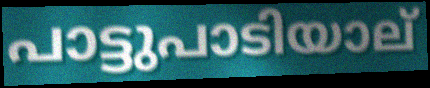
പാട്ടുപാടിയാല്